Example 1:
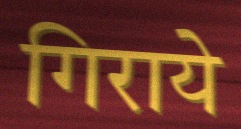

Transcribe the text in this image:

गिराये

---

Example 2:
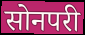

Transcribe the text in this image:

सोनपरी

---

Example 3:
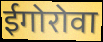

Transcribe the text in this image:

ईगोरोवा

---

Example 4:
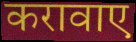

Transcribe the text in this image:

करावाए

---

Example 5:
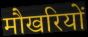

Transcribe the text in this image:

मौखरियों